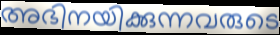
അഭിനയിക്കുന്നവരുടെ